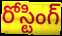
రోస్టింగ్